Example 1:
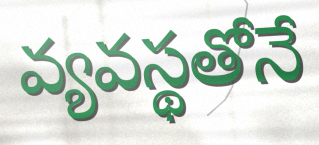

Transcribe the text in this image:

వ్యవస్థతోనే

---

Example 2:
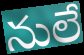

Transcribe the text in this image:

నులే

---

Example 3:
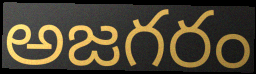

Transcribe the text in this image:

అజగరం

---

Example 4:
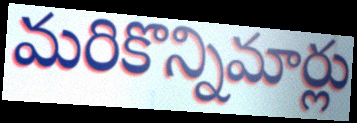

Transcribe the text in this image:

మరికొన్నిమార్లు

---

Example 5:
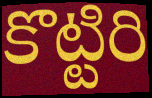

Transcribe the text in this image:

కొట్టిరి